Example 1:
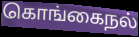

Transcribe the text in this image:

கொங்கைநல்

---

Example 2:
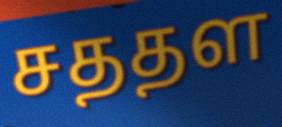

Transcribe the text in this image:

சததள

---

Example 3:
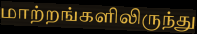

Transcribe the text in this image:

மாற்றங்களிலிருந்து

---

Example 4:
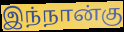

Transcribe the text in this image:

இந்நான்கு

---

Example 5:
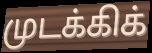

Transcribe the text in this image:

முடக்கிக்